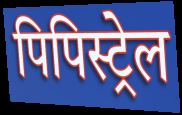
पिपिस्ट्रेल